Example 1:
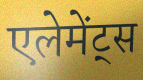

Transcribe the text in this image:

एलेमेंट्स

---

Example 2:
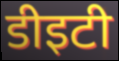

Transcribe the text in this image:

डीइटी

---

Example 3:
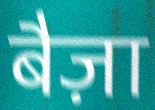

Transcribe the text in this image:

बैज़ा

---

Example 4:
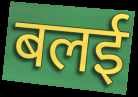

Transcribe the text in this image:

बलई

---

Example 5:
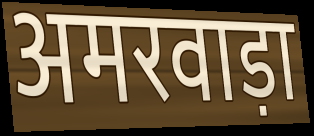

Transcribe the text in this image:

अमरवाड़ा